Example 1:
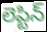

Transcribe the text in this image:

లెప్టిన్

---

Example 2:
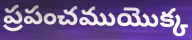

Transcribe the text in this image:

ప్రపంచముయొక్క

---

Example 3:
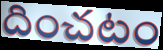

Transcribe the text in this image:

దించటం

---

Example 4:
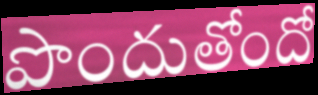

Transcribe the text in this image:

పొందుతోందో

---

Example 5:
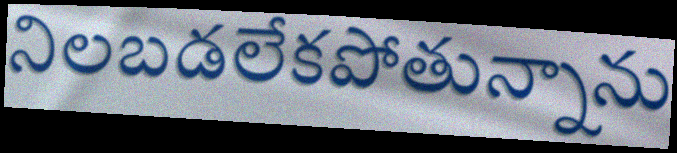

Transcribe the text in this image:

నిలబడలేకపోతున్నాను